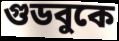
গুডবুকে